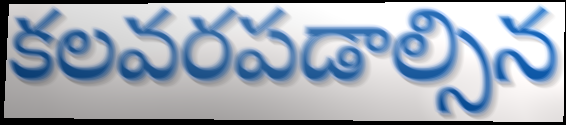
కలవరపడాల్సిన